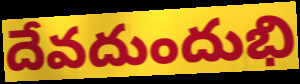
దేవదుందుభి